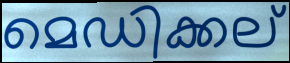
മെഡിക്കല്